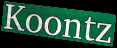
Koontz